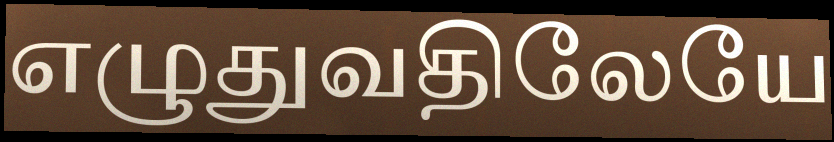
எழுதுவதிலேயே